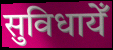
सुविधायेँ